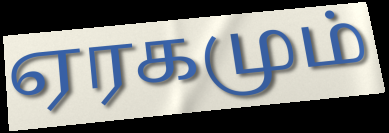
ஏரகமும்